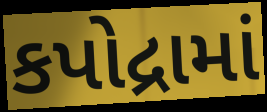
કપોદ્રામાં